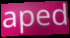
aped